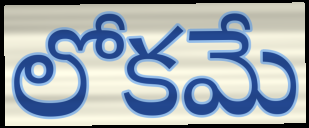
లోకమే